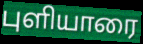
புளியாரை